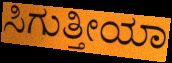
ಸಿಗುತ್ತೀಯಾ